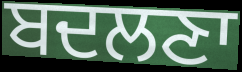
ਬਦਲਣਾ